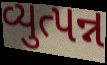
વ્યુત્પન્ન